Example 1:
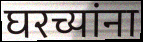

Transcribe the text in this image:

घरच्यांना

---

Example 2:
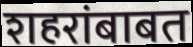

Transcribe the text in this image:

शहरांबाबत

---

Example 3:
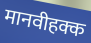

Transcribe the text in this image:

मानवीहक्क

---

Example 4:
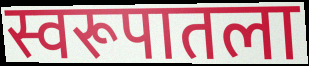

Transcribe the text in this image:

स्वरूपातला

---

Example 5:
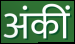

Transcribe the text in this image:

अंकीं